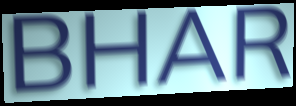
BHAR